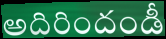
అదిరిందండీ